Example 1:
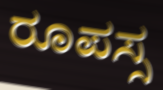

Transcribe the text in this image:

ರೂಪಸ್ಸ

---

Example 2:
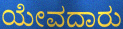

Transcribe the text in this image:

ಯೇವದಾರು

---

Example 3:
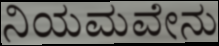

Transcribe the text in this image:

ನಿಯಮವೇನು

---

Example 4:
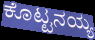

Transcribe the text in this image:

ಕೊಟ್ಟನಯ್ಯ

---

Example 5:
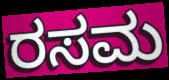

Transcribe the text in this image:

ರಸಮ